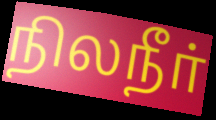
நிலநீர்